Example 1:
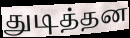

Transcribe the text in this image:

துடித்தன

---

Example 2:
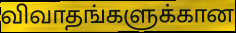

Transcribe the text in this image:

விவாதங்களுக்கான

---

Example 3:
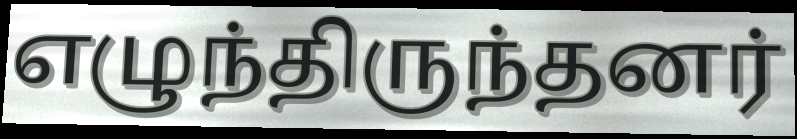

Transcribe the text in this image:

எழுந்திருந்தனர்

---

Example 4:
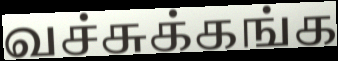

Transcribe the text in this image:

வச்சுக்கங்க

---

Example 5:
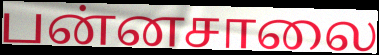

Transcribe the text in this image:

பன்னசாலை